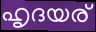
ഹൃദയര്